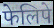
फेलिपे